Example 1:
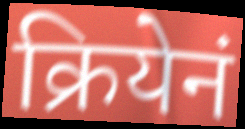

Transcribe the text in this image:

क्रियेनं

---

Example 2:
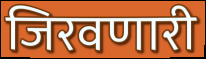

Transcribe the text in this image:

जिरवणारी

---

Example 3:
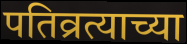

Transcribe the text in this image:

पतिव्रत्याच्या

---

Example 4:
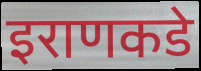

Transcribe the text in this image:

इराणकडे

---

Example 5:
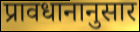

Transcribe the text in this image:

प्रावधानानुसार